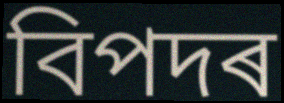
বিপদৰ